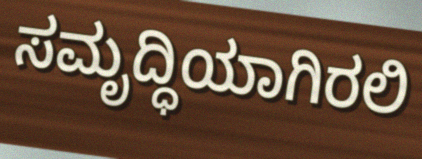
ಸಮೃದ್ಧಿಯಾಗಿರಲಿ